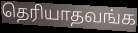
தெரியாதவங்க